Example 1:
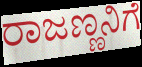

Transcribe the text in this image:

ರಾಜಣ್ಣನಿಗೆ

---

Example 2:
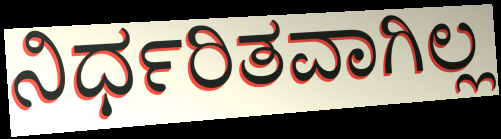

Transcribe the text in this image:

ನಿರ್ಧರಿತವಾಗಿಲ್ಲ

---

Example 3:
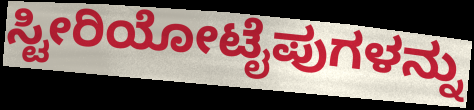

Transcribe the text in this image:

ಸ್ಟೀರಿಯೋಟೈಪುಗಳನ್ನು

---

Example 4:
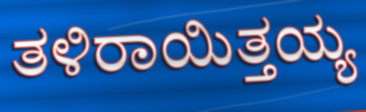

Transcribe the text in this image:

ತಳಿರಾಯಿತ್ತಯ್ಯ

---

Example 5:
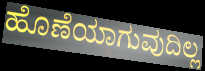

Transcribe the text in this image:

ಹೊಣೆಯಾಗುವುದಿಲ್ಲ